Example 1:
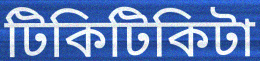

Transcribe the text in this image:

টিকিটিকিটা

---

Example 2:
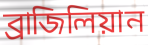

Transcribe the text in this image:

ব্রাজিলিয়ান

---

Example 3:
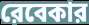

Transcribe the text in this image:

রেবেকার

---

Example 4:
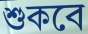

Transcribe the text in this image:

শুকবে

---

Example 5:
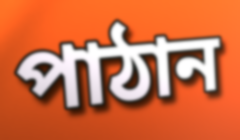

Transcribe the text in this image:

পাঠান